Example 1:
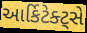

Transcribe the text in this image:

આર્કિટેક્ટ્સે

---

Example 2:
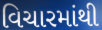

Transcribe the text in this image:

વિચારમાંથી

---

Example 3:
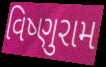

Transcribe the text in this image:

વિષ્ણુરામ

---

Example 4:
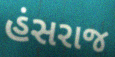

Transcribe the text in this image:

હંસરાજ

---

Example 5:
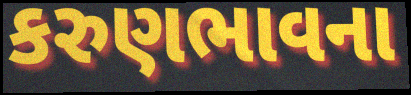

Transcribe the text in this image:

કરુણભાવના